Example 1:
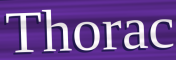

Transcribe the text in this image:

Thorac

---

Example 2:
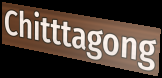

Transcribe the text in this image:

Chitttagong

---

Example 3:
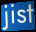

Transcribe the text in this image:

jist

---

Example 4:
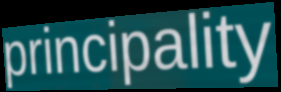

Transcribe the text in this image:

principality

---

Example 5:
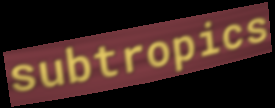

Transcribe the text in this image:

subtropics